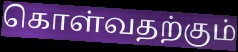
கொள்வதற்கும்